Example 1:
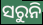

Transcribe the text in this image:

ସରୁନି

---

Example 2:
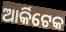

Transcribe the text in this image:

ଆର୍କିଟେକ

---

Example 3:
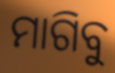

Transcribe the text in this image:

ମାଗିବୁ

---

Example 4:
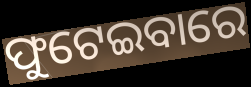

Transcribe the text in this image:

ଫୁଟେଇବାରେ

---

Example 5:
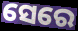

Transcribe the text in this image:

ସେରେ